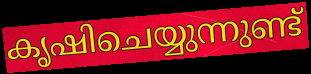
കൃഷിചെയ്യുന്നുണ്ട്